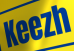
Keezh